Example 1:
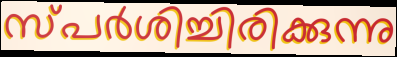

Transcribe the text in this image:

സ്പർശിച്ചിരിക്കുന്നു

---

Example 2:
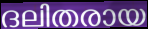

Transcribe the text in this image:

ദലിതരായ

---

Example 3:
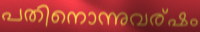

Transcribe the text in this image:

പതിനൊന്നുവര്ഷം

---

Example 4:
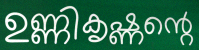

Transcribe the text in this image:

ഉണ്ണികൃഷ്ണന്റെ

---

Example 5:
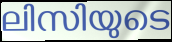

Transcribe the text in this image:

ലിസിയുടെ